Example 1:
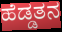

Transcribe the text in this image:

ಹೆಡ್ಡತನ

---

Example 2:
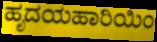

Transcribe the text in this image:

ಹೃದಯಹಾರಿಯಿಂ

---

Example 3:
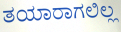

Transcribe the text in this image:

ತಯಾರಾಗಲಿಲ್ಲ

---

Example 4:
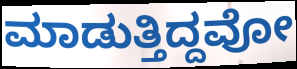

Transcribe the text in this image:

ಮಾಡುತ್ತಿದ್ದವೋ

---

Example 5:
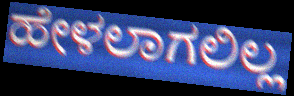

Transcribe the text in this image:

ಹೇಳಲಾಗಲಿಲ್ಲ